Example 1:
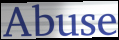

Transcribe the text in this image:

Abuse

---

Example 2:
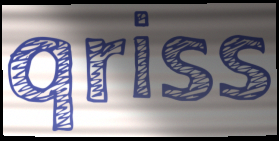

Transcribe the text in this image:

qriss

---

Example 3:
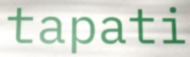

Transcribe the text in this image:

tapati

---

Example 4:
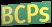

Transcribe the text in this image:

BCPs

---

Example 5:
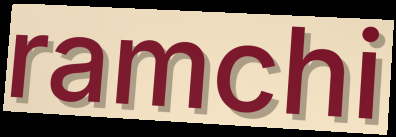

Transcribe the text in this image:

ramchi